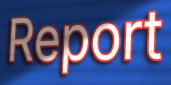
Report